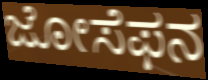
ಜೋಸೆಫನ